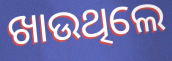
ଖାଉଥିଲେ